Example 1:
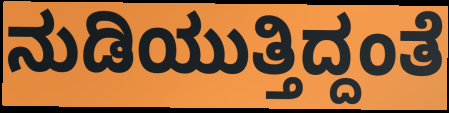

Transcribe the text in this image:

ನುಡಿಯುತ್ತಿದ್ದಂತೆ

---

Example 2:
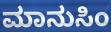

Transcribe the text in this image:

ಮಾನುಸಿಂ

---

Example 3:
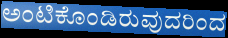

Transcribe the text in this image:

ಅಂಟಿಕೊಂಡಿರುವುದರಿಂದ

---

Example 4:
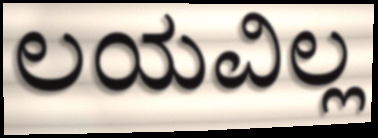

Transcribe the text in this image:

ಲಯವಿಲ್ಲ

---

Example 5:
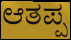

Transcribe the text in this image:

ಆತಪ್ಪ